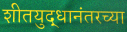
शीतयुद्धानंतरच्या